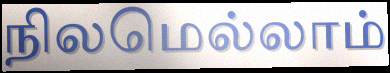
நிலமெல்லாம்